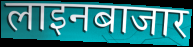
लाइनबाजार